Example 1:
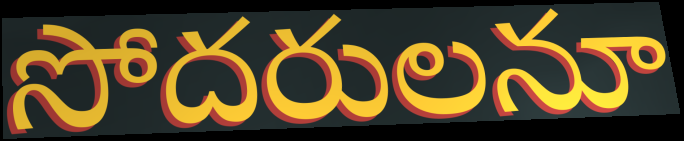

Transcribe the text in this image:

సోదరులనూ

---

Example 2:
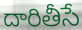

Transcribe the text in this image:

దారితీసే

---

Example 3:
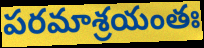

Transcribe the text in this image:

పరమాశ్రయంతః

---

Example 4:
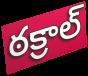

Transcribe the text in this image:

ఠక్రాల్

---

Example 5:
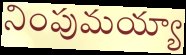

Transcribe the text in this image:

నింపుమయ్యా